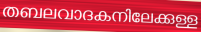
തബലവാദകനിലേക്കുള്ള